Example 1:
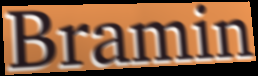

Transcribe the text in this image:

Bramin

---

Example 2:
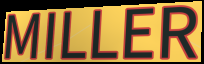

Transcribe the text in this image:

MILLER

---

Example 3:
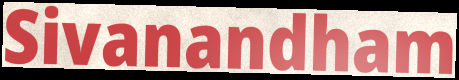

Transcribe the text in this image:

Sivanandham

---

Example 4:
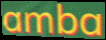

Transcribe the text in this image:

amba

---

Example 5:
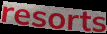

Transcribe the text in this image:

resorts